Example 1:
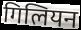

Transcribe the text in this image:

गिलियन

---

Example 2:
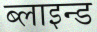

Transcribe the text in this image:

ब्लाइन्ड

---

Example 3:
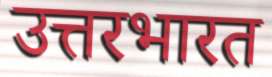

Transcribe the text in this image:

उत्तरभारत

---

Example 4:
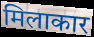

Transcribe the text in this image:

मिलाकार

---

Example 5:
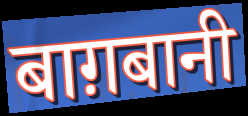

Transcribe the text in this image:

बाग़बानी